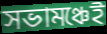
সভামঞ্চেই